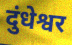
दुंधेश्वर